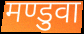
मण्डुवा